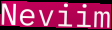
Neviim